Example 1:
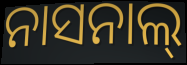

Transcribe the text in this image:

ନାସନାଲ୍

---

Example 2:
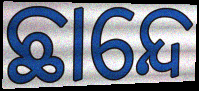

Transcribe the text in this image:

ଛାନ୍ଦେ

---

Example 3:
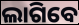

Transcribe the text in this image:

ଲାଗିବେ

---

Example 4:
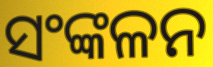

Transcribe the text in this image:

ସଂଙ୍କଳନ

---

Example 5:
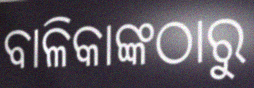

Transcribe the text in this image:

ବାଳିକାଙ୍କଠାରୁ